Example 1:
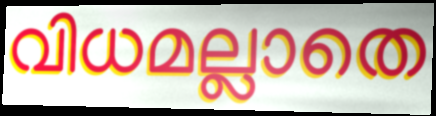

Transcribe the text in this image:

വിധമല്ലാതെ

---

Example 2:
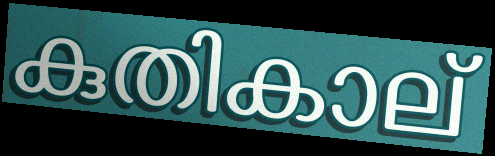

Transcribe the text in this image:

കുതികാല്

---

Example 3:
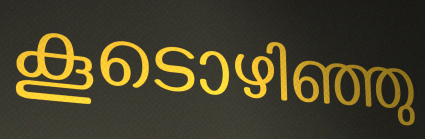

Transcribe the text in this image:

കൂടൊഴിഞ്ഞു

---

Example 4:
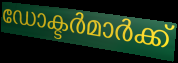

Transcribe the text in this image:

ഡോക്ടർമാർക്ക്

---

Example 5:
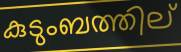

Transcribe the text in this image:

കുടുംബത്തില്